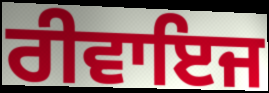
ਰੀਵਾਇਜ